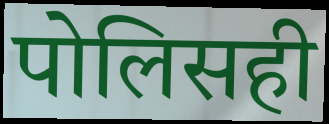
पोलिसही